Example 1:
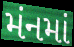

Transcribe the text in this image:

મંનમાં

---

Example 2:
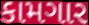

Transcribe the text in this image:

કામગાર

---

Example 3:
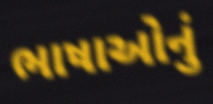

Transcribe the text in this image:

ભાષાઓનું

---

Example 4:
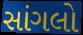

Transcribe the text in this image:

સાંગલો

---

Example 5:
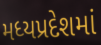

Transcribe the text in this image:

મધ્યપ્રદેશમાં